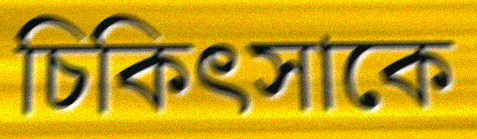
চিকিৎসাকে